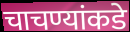
चाचण्यांकडे